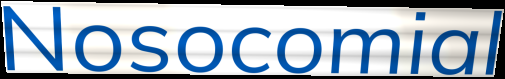
Nosocomial